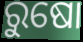
ରୁଷୋ